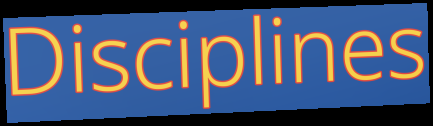
Disciplines